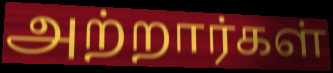
அற்றார்கள்